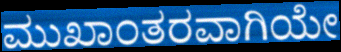
ಮುಖಾಂತರವಾಗಿಯೇ